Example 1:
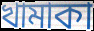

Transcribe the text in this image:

খামাকা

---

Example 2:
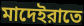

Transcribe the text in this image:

মাদেইরাতে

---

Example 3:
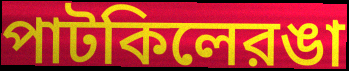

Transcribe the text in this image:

পাটকিলেরঙা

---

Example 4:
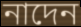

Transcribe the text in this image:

নাদেন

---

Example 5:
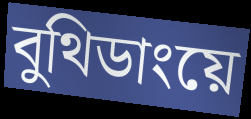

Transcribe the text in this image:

বুথিডাংয়ে